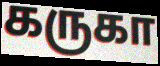
கருகா